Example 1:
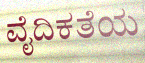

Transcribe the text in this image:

ವೈದಿಕತೆಯ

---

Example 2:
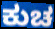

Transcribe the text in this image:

ಕುಚ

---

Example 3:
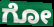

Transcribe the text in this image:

ಗೋ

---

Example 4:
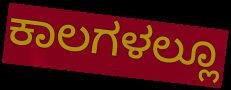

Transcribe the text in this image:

ಕಾಲಗಳಲ್ಲೂ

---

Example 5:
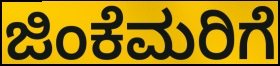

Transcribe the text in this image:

ಜಿಂಕೆಮರಿಗೆ